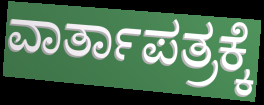
ವಾರ್ತಾಪತ್ರಕ್ಕೆ